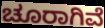
ಚೂರಾಗಿವೆ